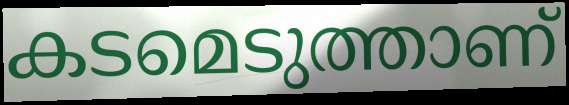
കടമെടുത്താണ്